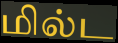
மில்ட